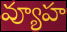
వ్యూహ